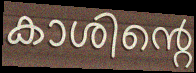
കാശിന്റെ